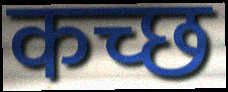
कच्छ